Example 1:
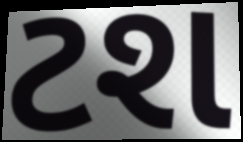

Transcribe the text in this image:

ટશ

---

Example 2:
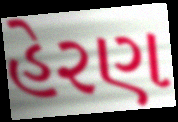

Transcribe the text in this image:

હેરણ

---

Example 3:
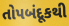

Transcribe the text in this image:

તોપબંદૂકથી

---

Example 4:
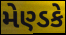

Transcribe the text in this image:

મેણ્ડકે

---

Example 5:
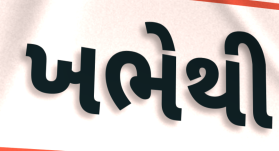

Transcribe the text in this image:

ખભેથી